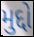
મુદ્દો